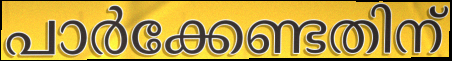
പാർക്കേണ്ടതിന്